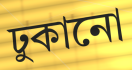
ঢুকানো